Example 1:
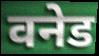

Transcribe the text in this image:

वनेड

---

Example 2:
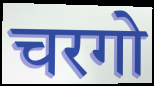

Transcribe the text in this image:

चरगो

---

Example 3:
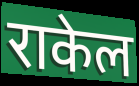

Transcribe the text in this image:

राकेल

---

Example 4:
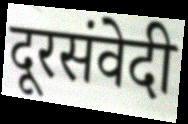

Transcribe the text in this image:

दूरसंवेदी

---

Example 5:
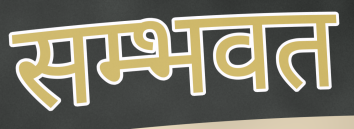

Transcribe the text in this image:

सम्भवत